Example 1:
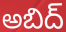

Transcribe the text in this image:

అబిద్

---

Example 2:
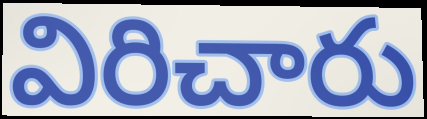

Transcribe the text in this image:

విరిచారు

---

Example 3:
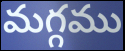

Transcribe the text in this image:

మగ్గము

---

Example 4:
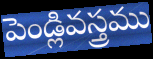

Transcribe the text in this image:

పెండ్లివస్త్రము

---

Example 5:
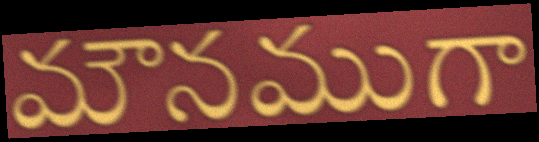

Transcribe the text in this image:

మౌనముగా